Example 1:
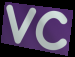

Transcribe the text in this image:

vc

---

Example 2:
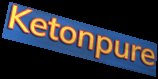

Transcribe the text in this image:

Ketonpure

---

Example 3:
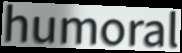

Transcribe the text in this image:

humoral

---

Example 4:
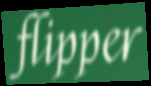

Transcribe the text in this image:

flipper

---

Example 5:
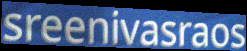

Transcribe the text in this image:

sreenivasraos